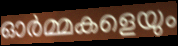
ഓർമ്മകളെയും